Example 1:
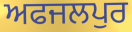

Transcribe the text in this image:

ਅਫਜਲਪੁਰ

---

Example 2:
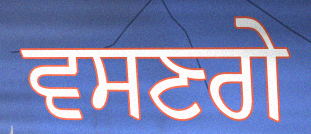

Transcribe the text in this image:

ਵਸਣਗੇ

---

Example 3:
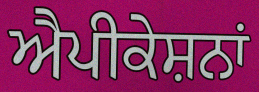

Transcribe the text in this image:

ਐਪੀਕੇਸ਼ਨਾਂ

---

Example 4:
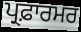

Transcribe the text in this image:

ਪ੍ਰਫ਼ਾਰਮਰ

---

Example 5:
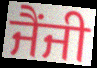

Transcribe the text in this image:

ਜੈਂਜੀ